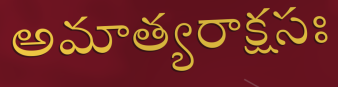
అమాత్యరాక్షసః